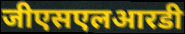
जीएसएलआरडी